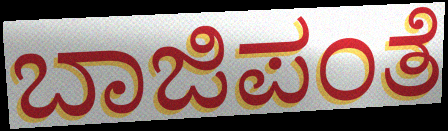
ಬಾಜಿಪಂತೆ